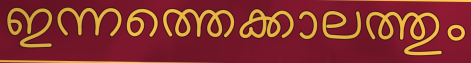
ഇന്നത്തെക്കാലത്തും